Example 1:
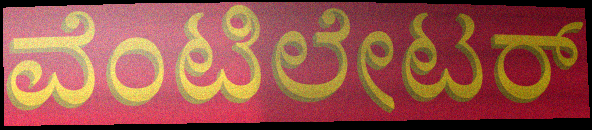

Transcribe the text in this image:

ವೆಂಟಿಲೇಟರ್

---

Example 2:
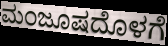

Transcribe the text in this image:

ಮಂಜೂಷದೊಳಗೆ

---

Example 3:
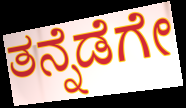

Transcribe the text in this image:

ತನ್ನೆಡೆಗೇ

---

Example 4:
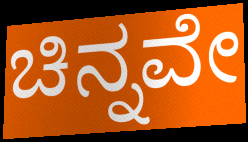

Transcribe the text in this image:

ಚಿನ್ನವೇ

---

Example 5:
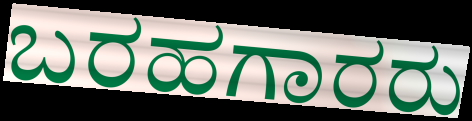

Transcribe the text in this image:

ಬರಹಗಾರರು